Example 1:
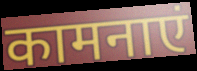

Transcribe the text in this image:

कामनाएं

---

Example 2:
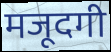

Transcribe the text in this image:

मजूदगी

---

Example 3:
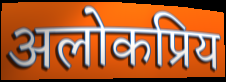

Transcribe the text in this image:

अलोकप्रिय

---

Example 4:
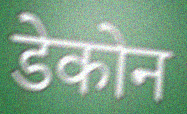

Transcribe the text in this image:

डेकोन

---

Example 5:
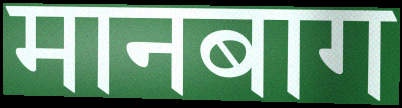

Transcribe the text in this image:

मानबाग